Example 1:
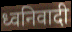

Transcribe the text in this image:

ध्वनिवादी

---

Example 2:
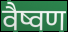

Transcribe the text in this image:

वैष्वण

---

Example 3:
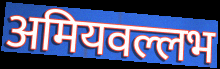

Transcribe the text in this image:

अमियवल्लभ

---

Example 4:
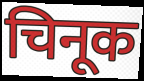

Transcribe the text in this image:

चिनूक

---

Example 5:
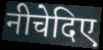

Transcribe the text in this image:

नीचेदिए